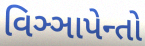
વિઞ્ઞાપેન્તો